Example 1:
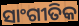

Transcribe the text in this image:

ସାଂଗୀତିକ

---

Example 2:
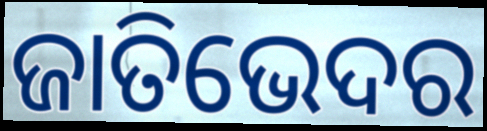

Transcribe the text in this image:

ଜାତିଭେଦର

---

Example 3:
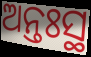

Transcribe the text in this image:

ଅନ୍ତଃସ୍ଥ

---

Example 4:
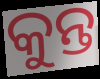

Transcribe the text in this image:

କୁନ୍ତ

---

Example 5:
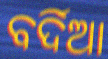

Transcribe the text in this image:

ବର୍ଦିଆ